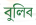
বুলিব